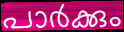
പാർക്കും